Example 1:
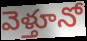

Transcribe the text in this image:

వెళ్తూనో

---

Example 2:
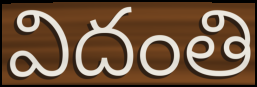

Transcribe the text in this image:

విదంతి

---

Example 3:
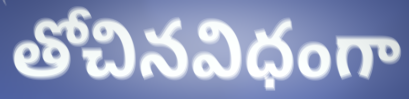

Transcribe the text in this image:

తోచినవిధంగా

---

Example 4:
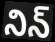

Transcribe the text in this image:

నిన్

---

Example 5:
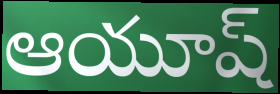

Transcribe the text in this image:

ఆయూష్